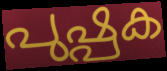
പുഷ്പക